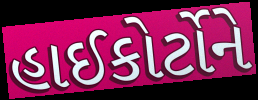
હાઈકોર્ટોને